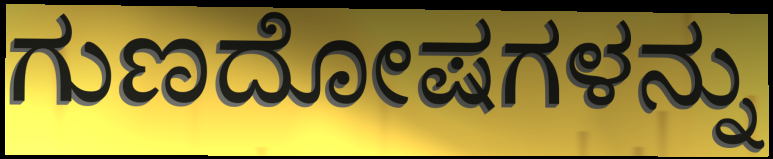
ಗುಣದೋಷಗಳನ್ನು